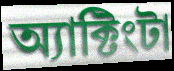
অ্যাক্টিংটা